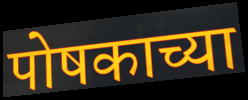
पोषकाच्या